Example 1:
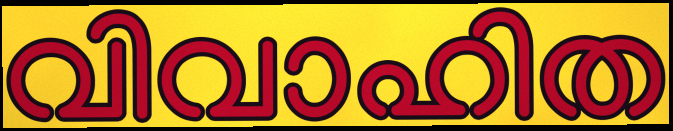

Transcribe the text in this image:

വിവാഹിത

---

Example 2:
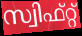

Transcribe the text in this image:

സ്വിഫ്റ്റ്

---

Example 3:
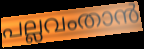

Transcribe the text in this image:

പല്ലവംതാൻ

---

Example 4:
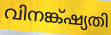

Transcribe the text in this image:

വിനങ്ക്ഷ്യതി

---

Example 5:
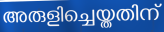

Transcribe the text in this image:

അരുളിച്ചെയ്തതിന്